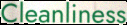
Cleanliness